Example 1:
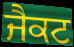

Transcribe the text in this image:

ਜੈਕਟ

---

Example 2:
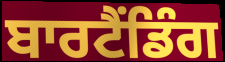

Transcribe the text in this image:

ਬਾਰਟੈਂਡਿੰਗ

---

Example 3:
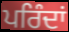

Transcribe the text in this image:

ਪਰਿੰਦਾਂ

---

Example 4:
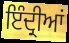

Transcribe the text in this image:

ਇੰਦ੍ਰੀਆਂ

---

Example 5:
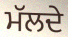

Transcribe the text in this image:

ਮੱਲਦੇ